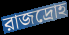
রাজদ্রোহ